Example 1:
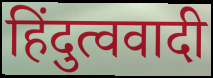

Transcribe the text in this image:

हिंदुत्ववादी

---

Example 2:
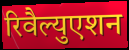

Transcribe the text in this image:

रिवैल्युएशन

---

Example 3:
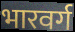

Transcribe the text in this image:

भारवर्ग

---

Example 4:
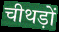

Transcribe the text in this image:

चीथड़ों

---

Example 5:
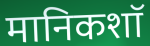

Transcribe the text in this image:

मानिकशॉ